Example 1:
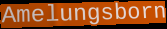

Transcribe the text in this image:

Amelungsborn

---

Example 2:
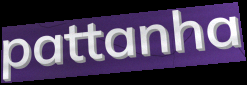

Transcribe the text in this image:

pattanha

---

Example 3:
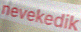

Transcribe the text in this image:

nevekedik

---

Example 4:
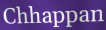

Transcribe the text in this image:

Chhappan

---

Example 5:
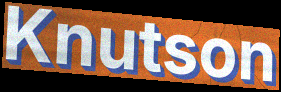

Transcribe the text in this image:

Knutson